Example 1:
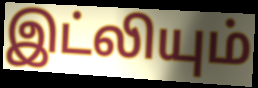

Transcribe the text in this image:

இட்லியும்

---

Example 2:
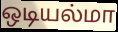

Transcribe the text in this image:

ஒடியல்மா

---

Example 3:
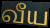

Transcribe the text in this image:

வீய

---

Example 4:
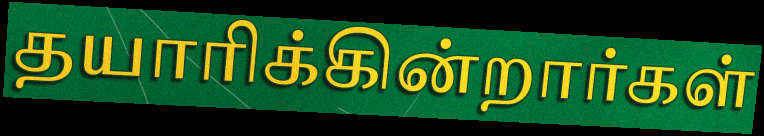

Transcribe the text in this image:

தயாரிக்கின்றார்கள்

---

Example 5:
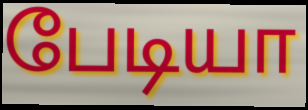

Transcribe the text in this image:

பேடியா